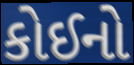
કોઈનો